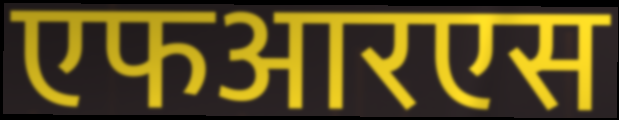
एफआरएस